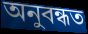
অনুবন্ধত